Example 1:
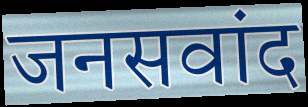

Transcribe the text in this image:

जनसवांद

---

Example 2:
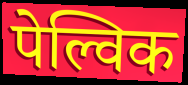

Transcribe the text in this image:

पेल्विक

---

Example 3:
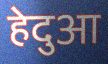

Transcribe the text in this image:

हेदुआ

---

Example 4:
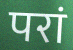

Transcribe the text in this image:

परां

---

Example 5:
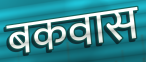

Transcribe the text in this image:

बकवास